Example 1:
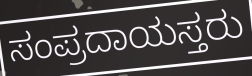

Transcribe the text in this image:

ಸಂಪ್ರದಾಯಸ್ತರು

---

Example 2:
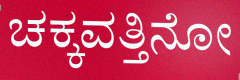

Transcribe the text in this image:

ಚಕ್ಕವತ್ತಿನೋ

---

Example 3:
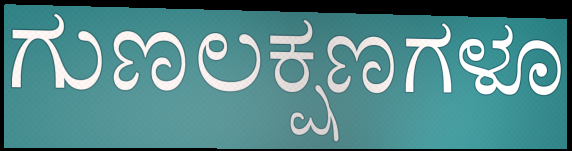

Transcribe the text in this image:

ಗುಣಲಕ್ಷಣಗಳೂ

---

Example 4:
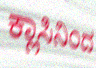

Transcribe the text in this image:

ಕ್ಲಾಸಿನಿಂದ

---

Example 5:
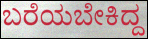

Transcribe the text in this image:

ಬರೆಯಬೇಕಿದ್ದ